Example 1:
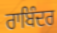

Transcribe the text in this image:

ਰਾਬਿੰਦਰ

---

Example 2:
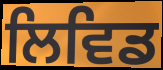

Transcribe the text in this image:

ਲਿਵਿਡ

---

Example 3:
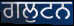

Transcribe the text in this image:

ਗਲੁਟਨ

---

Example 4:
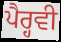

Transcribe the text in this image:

ਪੈਰ੍ਹਵੀ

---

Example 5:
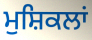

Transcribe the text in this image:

ਮੁਸ਼ਿਕਲਾਂ